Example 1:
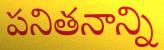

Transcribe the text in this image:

పనితనాన్ని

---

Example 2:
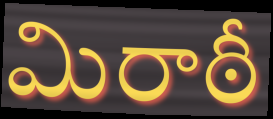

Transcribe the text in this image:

మిరాఠీ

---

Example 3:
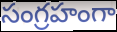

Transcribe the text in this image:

సంగ్రహంగా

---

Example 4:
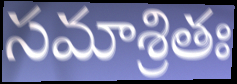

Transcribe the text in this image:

సమాశ్రితః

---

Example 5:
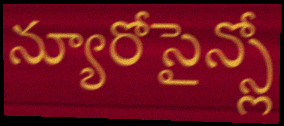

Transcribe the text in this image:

న్యూరోసైన్స్లో